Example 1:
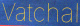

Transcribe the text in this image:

Vatchal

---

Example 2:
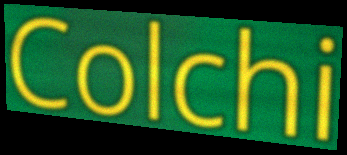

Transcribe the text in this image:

Colchi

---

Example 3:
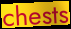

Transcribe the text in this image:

chests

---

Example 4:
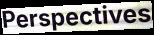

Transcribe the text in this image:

Perspectives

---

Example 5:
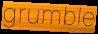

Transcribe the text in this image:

grumble